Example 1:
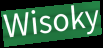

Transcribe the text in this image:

Wisoky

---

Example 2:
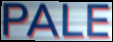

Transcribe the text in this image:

PALE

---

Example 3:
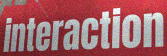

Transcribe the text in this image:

interaction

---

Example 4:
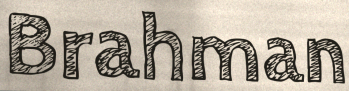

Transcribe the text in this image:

Brahman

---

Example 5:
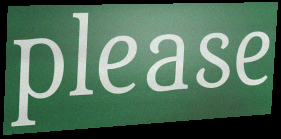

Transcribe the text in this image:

please